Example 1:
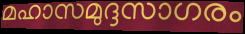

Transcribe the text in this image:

മഹാസമുദ്ദസാഗരം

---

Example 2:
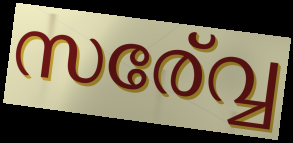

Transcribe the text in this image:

സര്വ്വേ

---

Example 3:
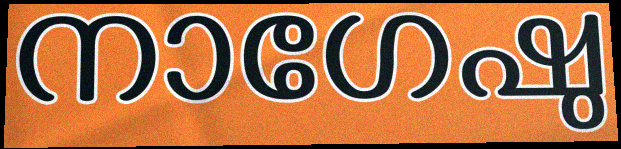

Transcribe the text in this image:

നാഗേഷു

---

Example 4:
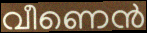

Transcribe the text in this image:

വീണെൻ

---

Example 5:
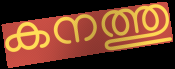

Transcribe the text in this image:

കനത്തു